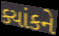
ક્યાંકને